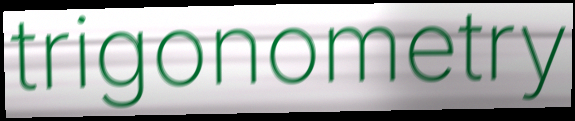
trigonometry